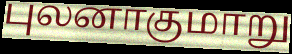
புலனாகுமாறு